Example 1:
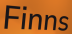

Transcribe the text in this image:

Finns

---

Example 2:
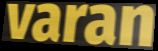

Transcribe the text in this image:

varan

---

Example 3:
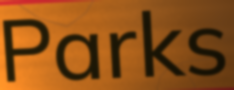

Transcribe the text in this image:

Parks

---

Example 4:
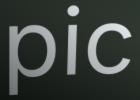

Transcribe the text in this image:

pic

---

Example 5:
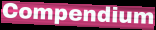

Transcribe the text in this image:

Compendium